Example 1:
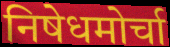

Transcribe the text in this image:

निषेधमोर्चा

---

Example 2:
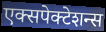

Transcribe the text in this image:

एक्सपेक्टेशन्स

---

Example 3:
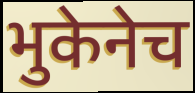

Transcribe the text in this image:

भुकेनेच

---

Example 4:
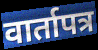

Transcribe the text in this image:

वार्तापत्र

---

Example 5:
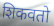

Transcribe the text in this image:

शिकवतो